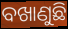
ବଖାଣୁଛି